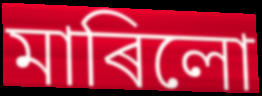
মাৰিলো